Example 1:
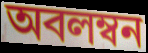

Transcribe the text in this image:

অবলম্বন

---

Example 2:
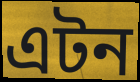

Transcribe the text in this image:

এটন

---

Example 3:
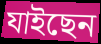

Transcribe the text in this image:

যাইছেন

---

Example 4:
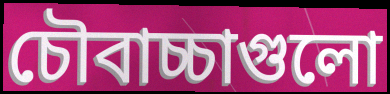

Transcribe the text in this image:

চৌবাচ্চাগুলো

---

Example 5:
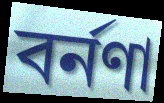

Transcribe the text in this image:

বর্নণা